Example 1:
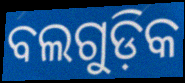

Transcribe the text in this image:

ବଲଗୁଡ଼ିକ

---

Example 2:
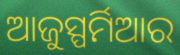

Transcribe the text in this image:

ଆଜୁସ୍ପର୍ମିଆର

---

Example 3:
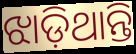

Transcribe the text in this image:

ଝାଡ଼ିଥାନ୍ତି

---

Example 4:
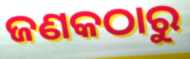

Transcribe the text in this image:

ଜଣକଠାରୁ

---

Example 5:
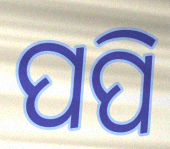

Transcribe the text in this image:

ପପି